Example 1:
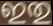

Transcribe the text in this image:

ഇതു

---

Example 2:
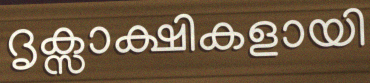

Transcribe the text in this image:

ദൃക്സാക്ഷികളായി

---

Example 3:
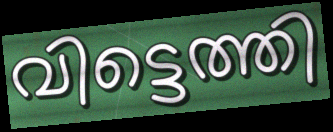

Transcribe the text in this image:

വിട്ടെത്തി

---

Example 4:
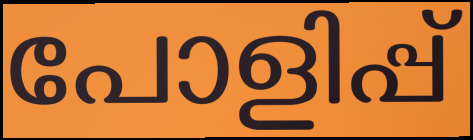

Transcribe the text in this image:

പോളിപ്പ്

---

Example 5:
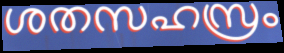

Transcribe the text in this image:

ശതസഹസ്രം